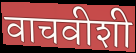
वाचवीशी